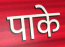
पाके